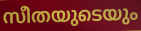
സീതയുടെയും